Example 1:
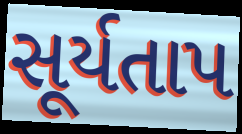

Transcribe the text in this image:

સૂર્યતાપ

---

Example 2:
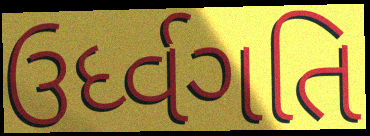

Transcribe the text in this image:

ઉર્ધ્વગતિ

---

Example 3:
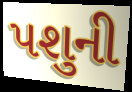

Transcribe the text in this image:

પશુની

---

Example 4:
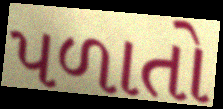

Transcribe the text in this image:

પળાતો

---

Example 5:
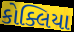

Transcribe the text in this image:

કોક્લિયા